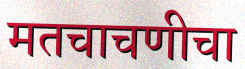
मतचाचणीचा